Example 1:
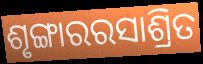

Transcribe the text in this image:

ଶୃଙ୍ଗାରରସାଶ୍ରିତ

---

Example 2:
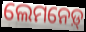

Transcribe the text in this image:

ଲେମନେଡ଼୍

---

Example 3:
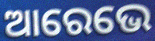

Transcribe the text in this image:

ଆରେଭେ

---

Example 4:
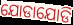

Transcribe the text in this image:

ଯୋଡାଯୋଡି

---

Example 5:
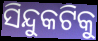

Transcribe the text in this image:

ସିନ୍ଦୁକଟିକୁ